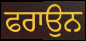
ਫਰਾਉਨ